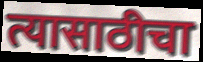
त्यासाठीचा